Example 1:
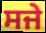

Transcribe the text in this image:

ਸਜੇ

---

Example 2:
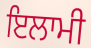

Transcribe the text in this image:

ਇਲਾਮੀ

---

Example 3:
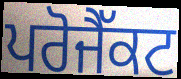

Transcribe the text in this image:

ਪਰੋਜੈੱਕਟ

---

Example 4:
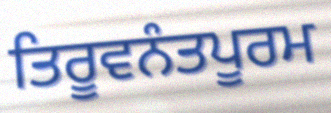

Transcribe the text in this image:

ਤਿਰੂਵਨੰਤਪੂਰਮ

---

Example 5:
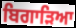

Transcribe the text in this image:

ਬਿਗਾੜਿਆ